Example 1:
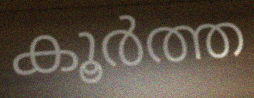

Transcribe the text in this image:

കൂർത്ത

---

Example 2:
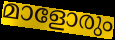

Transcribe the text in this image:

മാളോരും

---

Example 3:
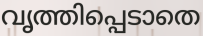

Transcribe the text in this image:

വൃത്തിപ്പെടാതെ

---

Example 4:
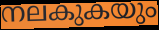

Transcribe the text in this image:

നലകുകയും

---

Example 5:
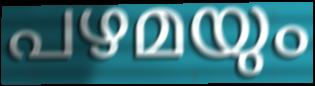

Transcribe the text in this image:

പഴമയും